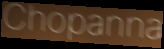
Chopanna